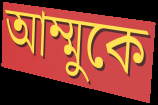
আম্মুকে